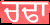
ਚਢਾ